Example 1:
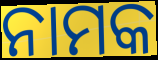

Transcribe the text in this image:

ନାମକ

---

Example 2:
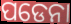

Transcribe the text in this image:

ପଡେନା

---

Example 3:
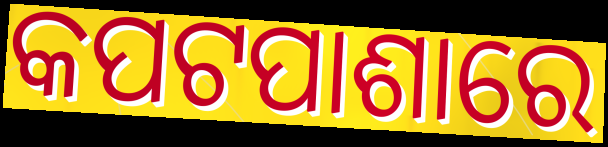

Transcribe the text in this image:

କପଟପାଶାରେ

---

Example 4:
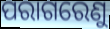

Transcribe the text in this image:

ପରାଗରେଣୁ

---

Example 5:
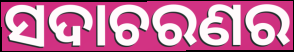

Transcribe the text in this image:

ସଦାଚରଣର